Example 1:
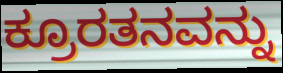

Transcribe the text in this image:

ಕ್ರೂರತನವನ್ನು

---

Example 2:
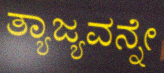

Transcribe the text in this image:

ತ್ಯಾಜ್ಯವನ್ನೇ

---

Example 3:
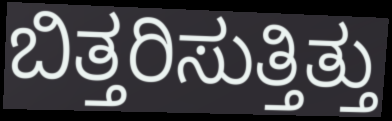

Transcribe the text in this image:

ಬಿತ್ತರಿಸುತ್ತಿತ್ತು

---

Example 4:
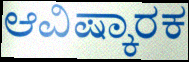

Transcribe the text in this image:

ಆವಿಷ್ಕಾರಕ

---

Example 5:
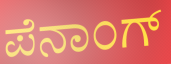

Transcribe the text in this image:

ಪೆನಾಂಗ್